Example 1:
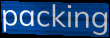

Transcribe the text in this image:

packing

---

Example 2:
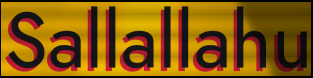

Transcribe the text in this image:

Sallallahu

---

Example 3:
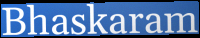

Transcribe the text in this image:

Bhaskaram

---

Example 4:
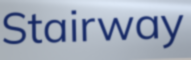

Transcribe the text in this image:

Stairway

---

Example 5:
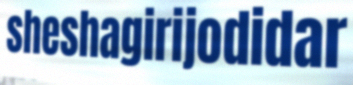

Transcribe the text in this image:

sheshagirijodidar